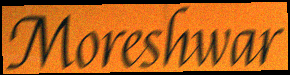
Moreshwar